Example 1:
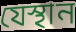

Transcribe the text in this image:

যেস্থান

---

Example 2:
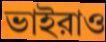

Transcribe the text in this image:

ভাইরাও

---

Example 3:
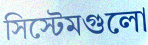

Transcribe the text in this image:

সিস্টেমগুলো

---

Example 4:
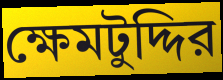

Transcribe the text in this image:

ক্ষেমটুদ্দির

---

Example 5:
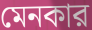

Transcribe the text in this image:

মেনকার